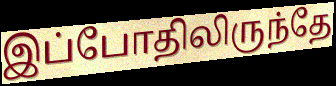
இப்போதிலிருந்தே